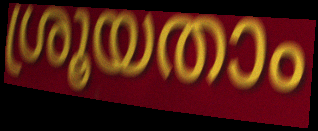
ശ്രൂയതാം